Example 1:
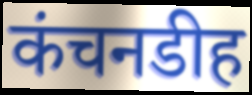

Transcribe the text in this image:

कंचनडीह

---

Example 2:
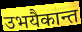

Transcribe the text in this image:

उभयैकान्त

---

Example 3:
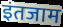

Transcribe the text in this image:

इंतजाम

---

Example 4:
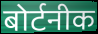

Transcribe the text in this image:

बोर्टनीक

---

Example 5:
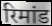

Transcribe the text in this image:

रिमांड